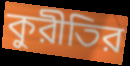
কুরীতির